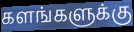
களங்களுக்கு